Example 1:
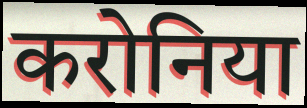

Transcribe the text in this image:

करोनिया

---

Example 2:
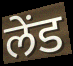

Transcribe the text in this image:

लेंड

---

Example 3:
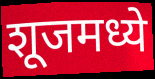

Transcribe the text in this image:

शूजमध्ये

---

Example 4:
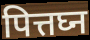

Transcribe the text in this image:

पित्तघ्न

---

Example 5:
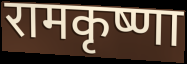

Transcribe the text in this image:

रामकृष्णा